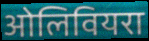
ओलिवियरा